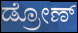
ಡ್ರೋಣ್